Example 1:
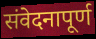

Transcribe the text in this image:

संवेदनापूर्ण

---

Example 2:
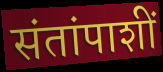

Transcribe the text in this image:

संतांपाशीं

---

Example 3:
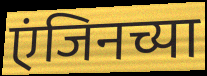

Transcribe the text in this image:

एंजिनच्या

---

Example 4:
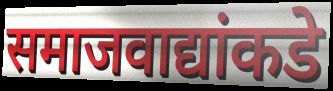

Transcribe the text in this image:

समाजवाद्यांकडे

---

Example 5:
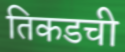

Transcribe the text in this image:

तिकडची